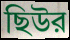
ছিউর